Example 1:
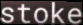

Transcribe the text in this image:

stoke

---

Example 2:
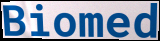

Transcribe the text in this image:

Biomed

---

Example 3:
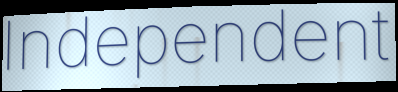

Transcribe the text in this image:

Independent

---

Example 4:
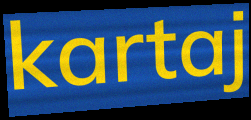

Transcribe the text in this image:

kartaj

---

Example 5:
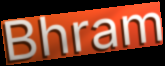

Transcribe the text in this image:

Bhram